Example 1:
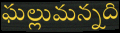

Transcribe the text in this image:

ఘల్లుమన్నది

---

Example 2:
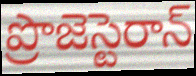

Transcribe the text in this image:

ప్రొజెస్టెరాన్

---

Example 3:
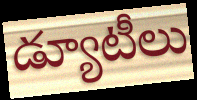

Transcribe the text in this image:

డ్యూటీలు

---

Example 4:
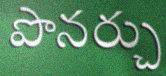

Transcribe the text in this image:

పొనర్చు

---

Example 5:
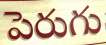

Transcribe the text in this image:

పెరుగు